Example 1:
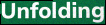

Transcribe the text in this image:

Unfolding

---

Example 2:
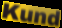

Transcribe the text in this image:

Kund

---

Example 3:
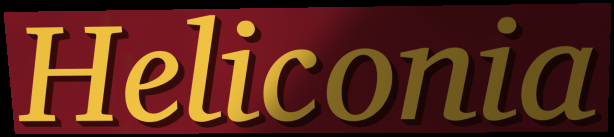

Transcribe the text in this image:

Heliconia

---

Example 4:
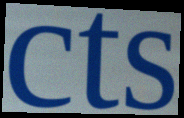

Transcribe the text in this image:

cts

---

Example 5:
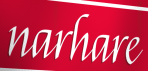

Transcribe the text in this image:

narhare